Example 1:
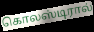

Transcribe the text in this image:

கொலஸ்டிரால்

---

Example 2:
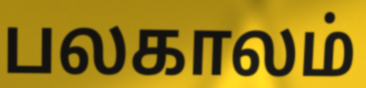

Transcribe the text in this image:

பலகாலம்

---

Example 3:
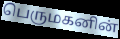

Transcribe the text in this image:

பெருமகனின்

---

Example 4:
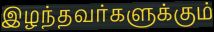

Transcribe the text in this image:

இழந்தவர்களுக்கும்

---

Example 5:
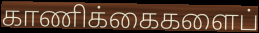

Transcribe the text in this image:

காணிக்கைகளைப்